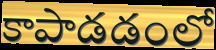
కాపాడడంలో